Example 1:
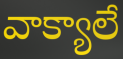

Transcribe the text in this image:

వాక్యాలే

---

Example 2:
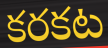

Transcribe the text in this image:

కరకట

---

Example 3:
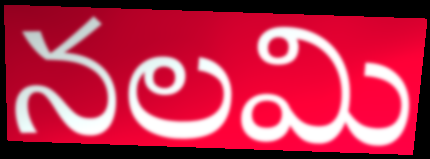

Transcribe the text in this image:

నలమి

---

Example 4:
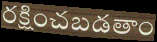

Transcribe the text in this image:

రక్షించబడతాం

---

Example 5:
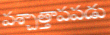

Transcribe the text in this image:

పశ్చాత్తాపపడు